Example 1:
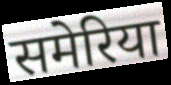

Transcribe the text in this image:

समेरिया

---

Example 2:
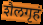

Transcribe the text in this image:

शैलगृहं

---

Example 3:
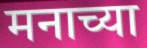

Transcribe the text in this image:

मनाच्‍या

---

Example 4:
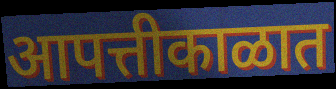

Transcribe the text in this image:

आपत्तीकाळात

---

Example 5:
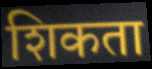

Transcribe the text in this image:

शिकता